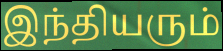
இந்தியரும்